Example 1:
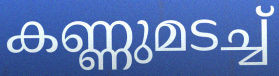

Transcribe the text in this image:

കണ്ണുമടച്ച്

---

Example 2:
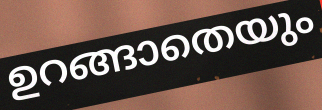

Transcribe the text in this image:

ഉറങ്ങാതെയും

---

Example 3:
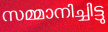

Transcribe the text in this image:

സമ്മാനിച്ചിട്ടു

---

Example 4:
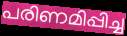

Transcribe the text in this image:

പരിണമിപ്പിച്ച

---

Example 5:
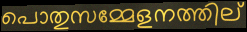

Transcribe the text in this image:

പൊതുസമ്മേളനത്തില്